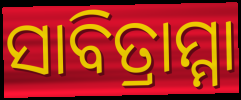
ସାବିତ୍ରାମ୍ମା